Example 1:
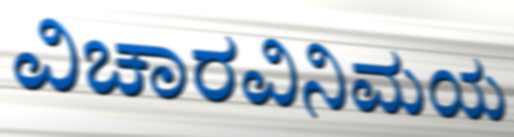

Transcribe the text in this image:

ವಿಚಾರವಿನಿಮಯ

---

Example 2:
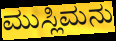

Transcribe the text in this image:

ಮುಸ್ಲಿಮನು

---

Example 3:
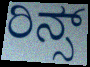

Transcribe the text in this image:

ರಿನ್ಸ್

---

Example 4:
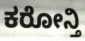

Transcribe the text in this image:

ಕರೋನ್ತಿ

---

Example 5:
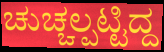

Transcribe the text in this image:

ಚುಚ್ಚಲ್ಪಟ್ಟಿದ್ದ